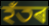
হঁতৰ